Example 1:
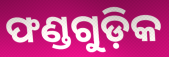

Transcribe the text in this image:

ଫଣ୍ଡଗୁଡ଼ିକ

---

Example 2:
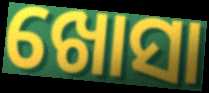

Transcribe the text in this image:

ଖୋସା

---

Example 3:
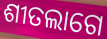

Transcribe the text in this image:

ଶୀତଲାଗେ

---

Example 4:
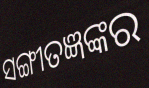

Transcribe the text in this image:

ସଙ୍ଗୀତଜ୍ଞଙ୍କର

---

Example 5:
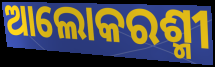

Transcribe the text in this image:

ଆଲୋକରଶ୍ମୀ